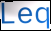
Leq